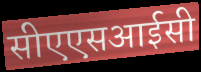
सीएएसआईसी